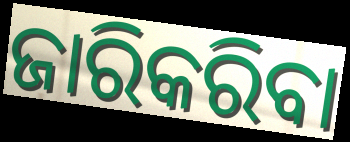
ଜାରିକରିବା